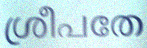
ശ്രീപതേ